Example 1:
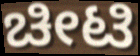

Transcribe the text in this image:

ಚೀಟಿ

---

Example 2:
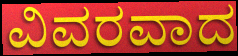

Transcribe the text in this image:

ವಿವರವಾದ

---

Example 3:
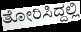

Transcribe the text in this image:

ತೋರಿಸಿದ್ದಲ್ಲಿ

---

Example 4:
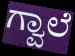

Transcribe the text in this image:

ಗ್ವಾಲೆ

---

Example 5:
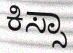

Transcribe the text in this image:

ಕಿಸ್ಸಾ